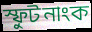
স্ফুটনাংক